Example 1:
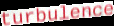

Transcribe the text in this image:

turbulence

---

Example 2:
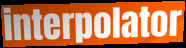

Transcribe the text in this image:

interpolator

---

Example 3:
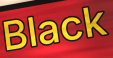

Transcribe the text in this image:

Black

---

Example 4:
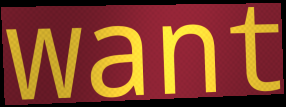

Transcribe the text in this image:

want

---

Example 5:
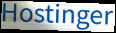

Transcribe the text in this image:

Hostinger